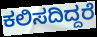
ಕಲಿಸದಿದ್ದರೆ